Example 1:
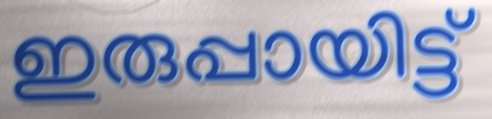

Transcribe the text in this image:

ഇരുപ്പായിട്ട്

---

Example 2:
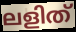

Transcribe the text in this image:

ലളിത്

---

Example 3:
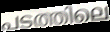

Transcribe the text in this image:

പടത്തിലെ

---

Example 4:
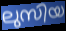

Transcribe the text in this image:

ലുസിയ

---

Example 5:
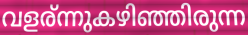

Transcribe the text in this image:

വളര്ന്നുകഴിഞ്ഞിരുന്ന